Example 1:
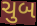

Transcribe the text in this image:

ચુબ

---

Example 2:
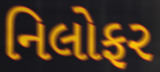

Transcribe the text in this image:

નિલોફર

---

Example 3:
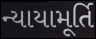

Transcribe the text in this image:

ન્યાયામૂર્તિ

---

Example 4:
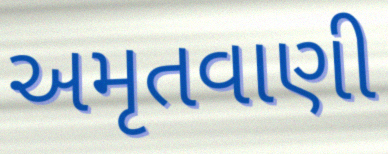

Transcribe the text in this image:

અમૃતવાણી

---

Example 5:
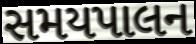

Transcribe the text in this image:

સમયપાલન